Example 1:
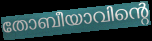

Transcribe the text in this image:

തോബീയാവിന്റെ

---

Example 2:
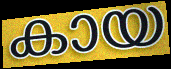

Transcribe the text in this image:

കായ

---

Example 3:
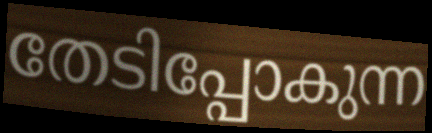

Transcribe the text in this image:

തേടിപ്പോകുന്ന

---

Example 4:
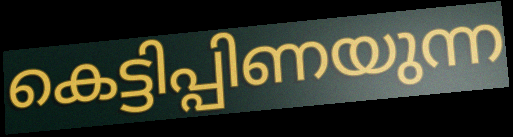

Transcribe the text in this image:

കെട്ടിപ്പിണയുന്ന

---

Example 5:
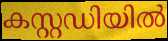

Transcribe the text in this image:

കസ്റ്റഡിയിൽ